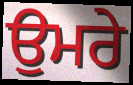
ਉਮਰੇ